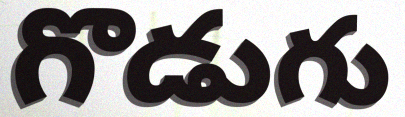
గొడుగు